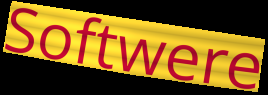
Softwere